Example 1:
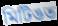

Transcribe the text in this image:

মিটিঙত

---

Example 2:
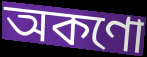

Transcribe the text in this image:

অকণো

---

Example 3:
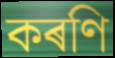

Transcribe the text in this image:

কৰণি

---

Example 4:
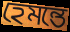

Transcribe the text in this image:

হেমন্তে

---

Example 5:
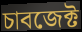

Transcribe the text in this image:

চাবজেক্ট